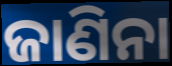
ଜାଣିନା